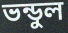
ভন্ডুল